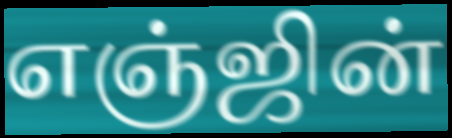
எஞ்ஜின்